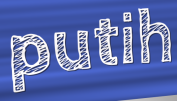
putih